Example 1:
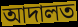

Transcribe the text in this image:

আদালত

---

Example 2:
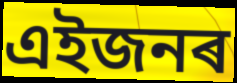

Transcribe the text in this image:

এইজনৰ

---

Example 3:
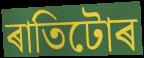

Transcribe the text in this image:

ৰাতিটোৰ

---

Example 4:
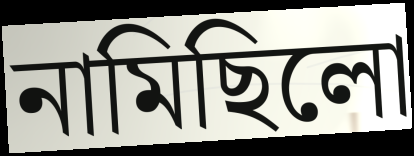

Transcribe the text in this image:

নামিছিলো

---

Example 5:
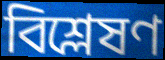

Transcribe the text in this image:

বিশ্লেষণ